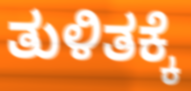
ತುಳಿತಕ್ಕೆ